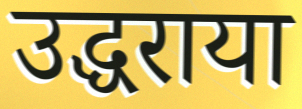
उद्धराया